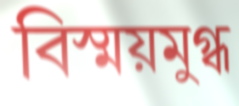
বিস্ময়মুগ্ধ